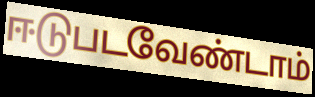
ஈடுபடவேண்டாம்